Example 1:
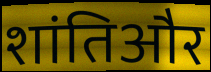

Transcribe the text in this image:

शांतिऔर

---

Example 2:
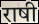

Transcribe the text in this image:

राषी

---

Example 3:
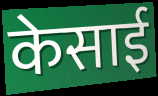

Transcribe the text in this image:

केसाई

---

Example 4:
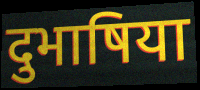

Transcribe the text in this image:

दुभाषिया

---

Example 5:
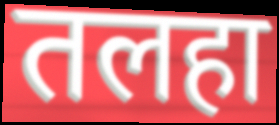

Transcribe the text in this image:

तलहा